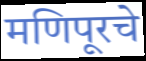
मणिपूरचे